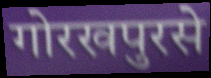
गोरखपुरसे